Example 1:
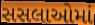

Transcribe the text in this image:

સસલાઓમાં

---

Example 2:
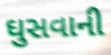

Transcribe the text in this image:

ઘુસવાની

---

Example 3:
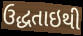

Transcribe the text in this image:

ઉદ્ધતાઇથી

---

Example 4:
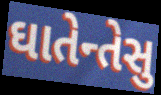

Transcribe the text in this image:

ઘાતેન્તેસુ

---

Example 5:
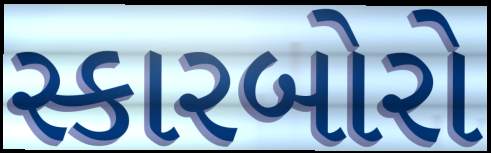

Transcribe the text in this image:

સ્કારબોરો